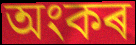
অংকৰ